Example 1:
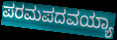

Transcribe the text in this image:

ಪರಮಪದವಯ್ಯಾ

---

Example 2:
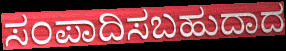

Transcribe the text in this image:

ಸಂಪಾದಿಸಬಹುದಾದ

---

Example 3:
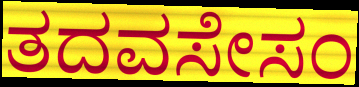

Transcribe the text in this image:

ತದವಸೇಸಂ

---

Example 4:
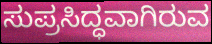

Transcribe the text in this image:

ಸುಪ್ರಸಿದ್ಧವಾಗಿರುವ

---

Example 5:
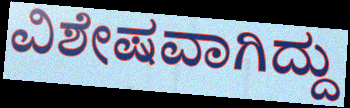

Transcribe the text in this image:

ವಿಶೇಷವಾಗಿದ್ದು